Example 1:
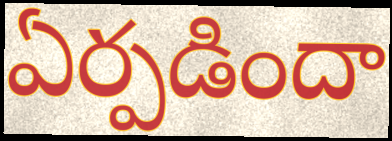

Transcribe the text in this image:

ఏర్పడిందా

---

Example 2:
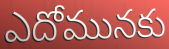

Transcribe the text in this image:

ఎదోమునకు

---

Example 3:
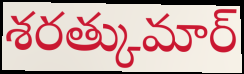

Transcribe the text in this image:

శరత్కుమార్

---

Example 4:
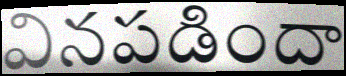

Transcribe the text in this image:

వినపడిందా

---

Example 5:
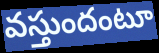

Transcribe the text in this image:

వస్తుందంటూ